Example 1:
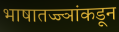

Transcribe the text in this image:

भाषातज्ज्ञांकडून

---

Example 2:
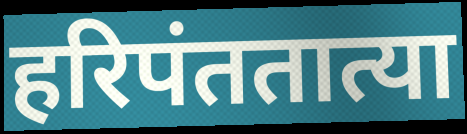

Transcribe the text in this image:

हरिपंततात्या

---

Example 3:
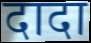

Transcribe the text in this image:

दादा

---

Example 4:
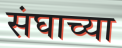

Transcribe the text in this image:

संघाच्या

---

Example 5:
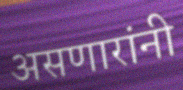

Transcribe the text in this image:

असणारांनी